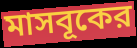
মাসবূকের